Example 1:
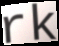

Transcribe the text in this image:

rk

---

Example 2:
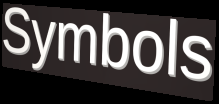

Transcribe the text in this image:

Symbols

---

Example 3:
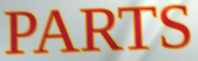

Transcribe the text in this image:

PARTS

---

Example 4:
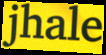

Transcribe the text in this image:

jhale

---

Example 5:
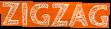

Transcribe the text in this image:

ZIGZAG